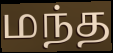
மந்த